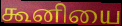
கூனியை